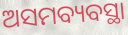
ଅସମବ୍ୟବସ୍ଥା